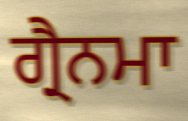
ਗ੍ਰੈਨਮਾ